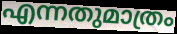
എന്നതുമാത്രം